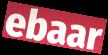
ebaar